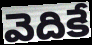
వెదికే